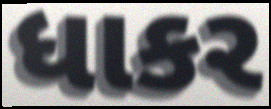
ધાકર